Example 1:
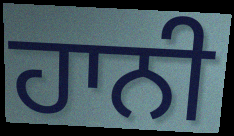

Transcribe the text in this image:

ਹਾਨੀ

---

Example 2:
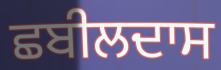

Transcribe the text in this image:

ਛਬੀਲਦਾਸ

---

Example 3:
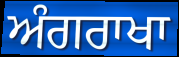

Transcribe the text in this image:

ਅੰਗਰਾਖਾ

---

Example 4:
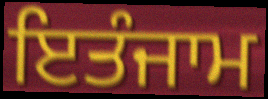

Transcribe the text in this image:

ਇਤੰਜਾਮ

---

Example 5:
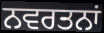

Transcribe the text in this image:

ਨਵਰਤਨਾਂ